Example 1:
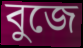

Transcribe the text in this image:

বুজে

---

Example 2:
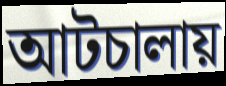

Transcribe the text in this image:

আটচালায়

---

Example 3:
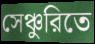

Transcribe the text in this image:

সেঞ্চুরিতে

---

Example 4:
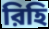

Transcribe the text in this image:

রিহি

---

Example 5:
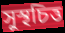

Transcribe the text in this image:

সুস্থচিত্ত